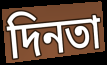
দিনতা